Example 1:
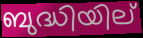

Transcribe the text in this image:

ബുദ്ധിയില്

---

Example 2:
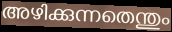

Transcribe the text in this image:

അഴിക്കുന്നതെന്തും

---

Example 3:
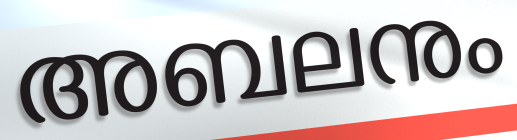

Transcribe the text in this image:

അബലനും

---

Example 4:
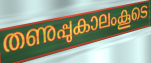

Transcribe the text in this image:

തണുപ്പുകാലംകൂടെ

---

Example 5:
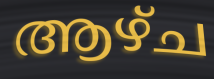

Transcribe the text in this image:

ആഴ്ച